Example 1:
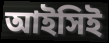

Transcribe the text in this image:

আইসিই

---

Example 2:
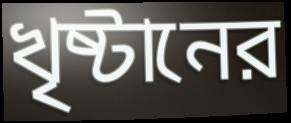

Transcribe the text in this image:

খৃষ্টানের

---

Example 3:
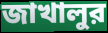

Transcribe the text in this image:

জাখালুর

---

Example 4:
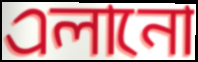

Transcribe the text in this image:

এলানো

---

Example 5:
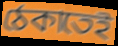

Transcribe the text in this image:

ঠেকাতেই